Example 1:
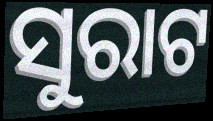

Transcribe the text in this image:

ସୁରାଟ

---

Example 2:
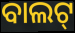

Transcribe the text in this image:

ବାଲଟ୍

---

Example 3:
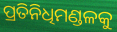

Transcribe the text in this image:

ପ୍ରତିନିଧିମଣ୍ଡଳକୁ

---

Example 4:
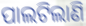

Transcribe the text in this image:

ପାଲଟିଲାଣି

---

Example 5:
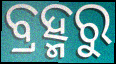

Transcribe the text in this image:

ବ୍ରହ୍ମରୁ